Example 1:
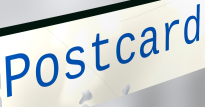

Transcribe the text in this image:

Postcard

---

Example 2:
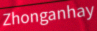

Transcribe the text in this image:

Zhonganhay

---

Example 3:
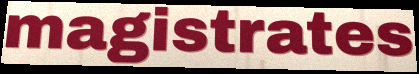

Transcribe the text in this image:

magistrates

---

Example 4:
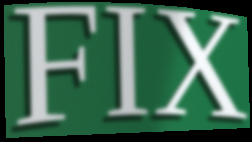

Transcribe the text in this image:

FIX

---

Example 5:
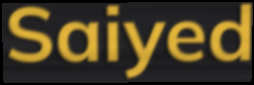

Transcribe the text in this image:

Saiyed